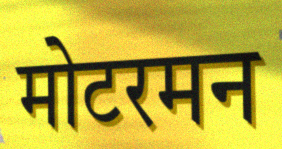
मोटरमन